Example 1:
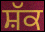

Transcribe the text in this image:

ਸ਼ੱਕ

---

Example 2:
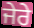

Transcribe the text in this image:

ਜੇਰੇ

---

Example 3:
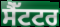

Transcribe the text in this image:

ਸੈੱਟਟਰ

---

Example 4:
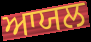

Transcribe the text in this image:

ਆਯਲ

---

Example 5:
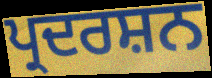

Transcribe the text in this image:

ਪ੍ਰਦਰਸ਼ਨ